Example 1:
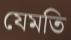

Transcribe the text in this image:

যেমতি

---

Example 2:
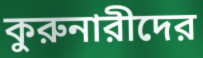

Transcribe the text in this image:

কুরুনারীদের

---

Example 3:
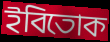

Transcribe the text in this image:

ইবিতোক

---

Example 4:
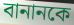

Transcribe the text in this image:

বানানকে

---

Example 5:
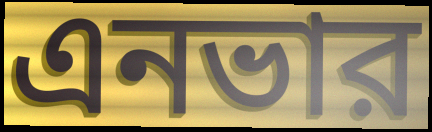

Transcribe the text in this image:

এনভার